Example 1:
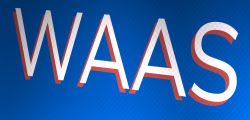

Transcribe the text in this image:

WAAS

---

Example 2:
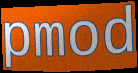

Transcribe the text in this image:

pmod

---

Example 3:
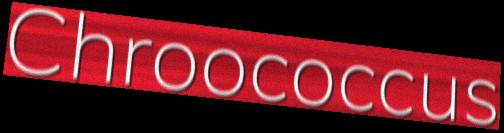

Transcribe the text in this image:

Chroococcus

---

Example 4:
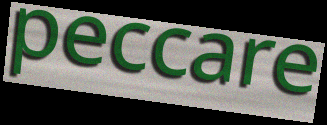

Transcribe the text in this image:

peccare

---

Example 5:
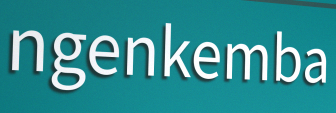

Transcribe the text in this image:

ngenkemba